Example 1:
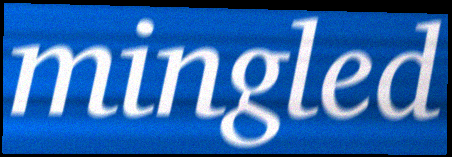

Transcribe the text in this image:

mingled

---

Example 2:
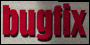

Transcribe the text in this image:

bugfix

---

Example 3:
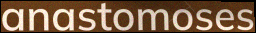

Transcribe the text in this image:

anastomoses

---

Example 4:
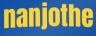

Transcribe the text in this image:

nanjothe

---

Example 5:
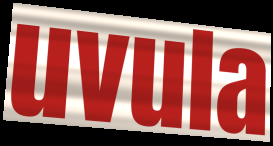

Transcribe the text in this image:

uvula